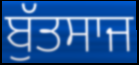
ਬੁੱਤਸਾਜ